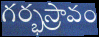
గర్భస్రావం